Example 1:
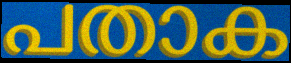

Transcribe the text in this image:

പതാക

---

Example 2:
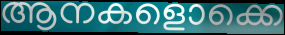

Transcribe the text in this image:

ആനകളൊക്കെ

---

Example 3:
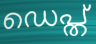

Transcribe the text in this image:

ഡെപ്ത്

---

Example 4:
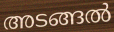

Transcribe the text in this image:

അടങ്ങൽ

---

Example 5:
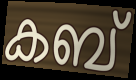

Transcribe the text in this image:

കബ്